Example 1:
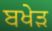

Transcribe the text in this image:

ਬਖੇੜ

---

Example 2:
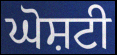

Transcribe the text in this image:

ਘੋਸ਼ਟੀ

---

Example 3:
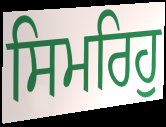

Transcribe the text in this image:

ਸਿਮਰਿਹੁ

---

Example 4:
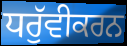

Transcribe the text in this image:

ਧਰੁੱਵੀਕਰਨ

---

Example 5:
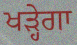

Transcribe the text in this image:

ਖੜ੍ਹੇਗਾ